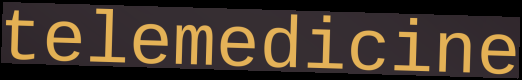
telemedicine